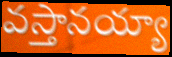
వస్తానయ్యా